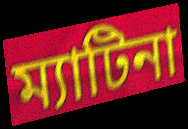
ম্যাটিনা